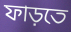
ফাড়তে